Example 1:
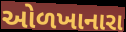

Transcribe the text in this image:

ઓળખાનારા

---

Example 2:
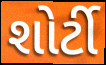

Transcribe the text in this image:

શોર્ટી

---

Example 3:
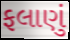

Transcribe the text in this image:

ફલાણું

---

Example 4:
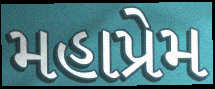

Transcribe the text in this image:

મહાપ્રેમ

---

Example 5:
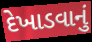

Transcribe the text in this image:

દેખાડવાનું